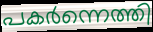
പകർന്നെത്തി